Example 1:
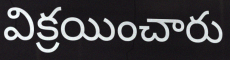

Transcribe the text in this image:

విక్రయించారు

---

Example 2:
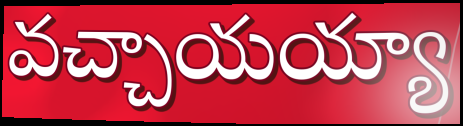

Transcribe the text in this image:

వచ్చాయయ్యా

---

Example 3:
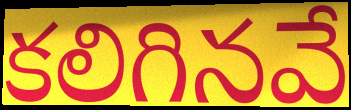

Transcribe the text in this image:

కలిగినవే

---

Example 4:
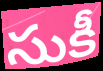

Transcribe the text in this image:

సుకీ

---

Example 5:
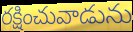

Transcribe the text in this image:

రక్షించువాడును